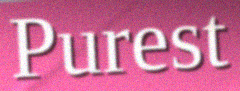
Purest